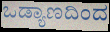
ಒಡ್ಯಾಣದಿಂದ